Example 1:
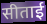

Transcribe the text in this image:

सीताई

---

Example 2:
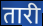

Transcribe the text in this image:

तारी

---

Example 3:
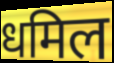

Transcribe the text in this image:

धमिल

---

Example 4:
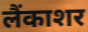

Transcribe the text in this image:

लैंकाशर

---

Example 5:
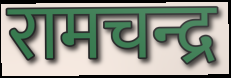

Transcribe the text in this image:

रामचन्‍द्र